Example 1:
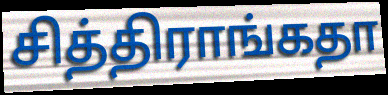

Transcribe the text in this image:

சித்திராங்கதா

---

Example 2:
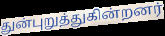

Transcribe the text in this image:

துன்புறுத்துகின்றனர்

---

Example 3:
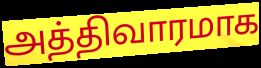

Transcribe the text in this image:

அத்திவாரமாக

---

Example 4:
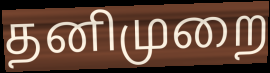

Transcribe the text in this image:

தனிமுறை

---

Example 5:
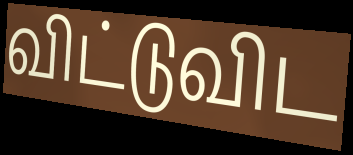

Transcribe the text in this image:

விட்டுவிட